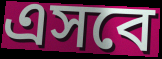
এসবে